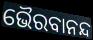
ଭୈରବାନନ୍ଦ